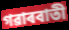
গৱাৰবাতী